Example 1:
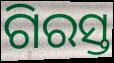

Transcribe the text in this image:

ଗିରସ୍ତ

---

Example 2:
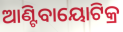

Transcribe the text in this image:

ଆଣ୍ଟିବାୟୋଟିକ୍ର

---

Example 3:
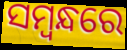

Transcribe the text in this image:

ସମ୍ୱନ୍ଧରେ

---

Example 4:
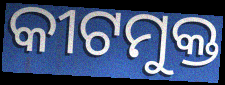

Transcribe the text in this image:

କୀଟମୁକ୍ତ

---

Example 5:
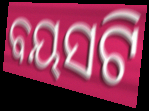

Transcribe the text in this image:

ବୟସଟି